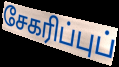
சேகரிப்புப்